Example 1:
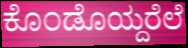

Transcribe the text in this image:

ಕೊಂಡೊಯ್ದರೆಲೆ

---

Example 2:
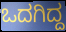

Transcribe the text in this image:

ಒದಗಿದ್ದ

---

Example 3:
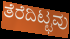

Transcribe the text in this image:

ತೆರೆದಿಟ್ಟವು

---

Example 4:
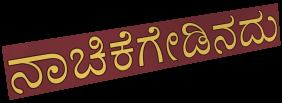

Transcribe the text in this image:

ನಾಚಿಕೆಗೇಡಿನದು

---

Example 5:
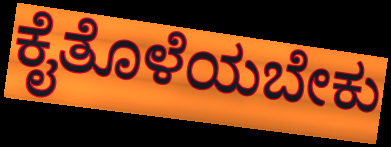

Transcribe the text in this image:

ಕೈತೊಳೆಯಬೇಕು